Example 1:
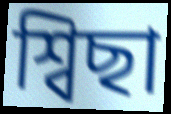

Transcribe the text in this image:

শ্বিছা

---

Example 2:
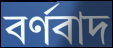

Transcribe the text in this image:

বৰ্ণবাদ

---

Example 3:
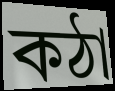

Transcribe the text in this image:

কঠা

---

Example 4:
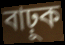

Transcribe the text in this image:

বাঢ়ুক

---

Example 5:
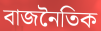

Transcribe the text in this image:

বাজনৈতিক